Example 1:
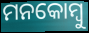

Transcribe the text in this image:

ମନକୋମ୍ବୁ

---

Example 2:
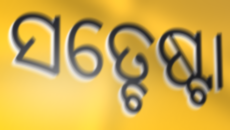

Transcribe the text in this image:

ସତ୍ଚେଷ୍ଟା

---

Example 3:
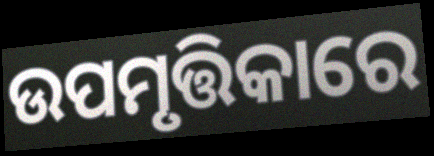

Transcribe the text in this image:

ଉପମୃତ୍ତିକାରେ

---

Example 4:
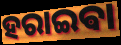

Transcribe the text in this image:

ହରାଇଵା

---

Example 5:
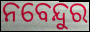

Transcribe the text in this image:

ନବେନ୍ଦୁର